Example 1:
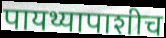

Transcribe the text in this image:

पायथ्यापाशीच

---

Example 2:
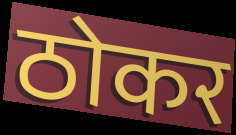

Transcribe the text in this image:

ठोकर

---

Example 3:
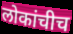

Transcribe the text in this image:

लोकांचीच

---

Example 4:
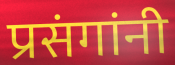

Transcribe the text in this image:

प्रसंगांनी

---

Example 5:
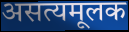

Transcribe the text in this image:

असत्यमूलक